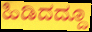
ಹಿಡಿದದ್ದೂ